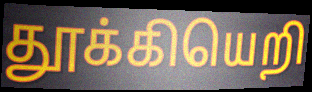
தூக்கியெறி